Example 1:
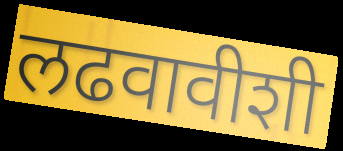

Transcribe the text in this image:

लढवावीशी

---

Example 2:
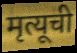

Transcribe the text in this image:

मृत्यूची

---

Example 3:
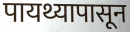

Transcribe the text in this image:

पायथ्यापासून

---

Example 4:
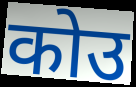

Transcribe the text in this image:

कोउ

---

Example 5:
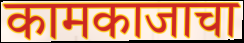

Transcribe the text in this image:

कामकाजाचा